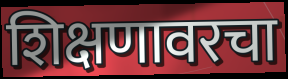
शिक्षणावरचा